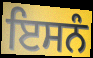
ਇਸਨੰ